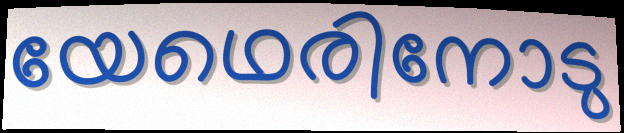
യേഥെരിനോടു